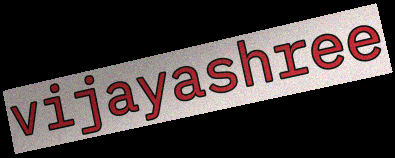
vijayashree